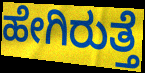
ಹೇಗಿರುತ್ತೆ